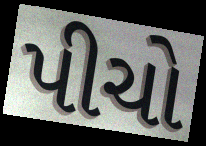
પીચો